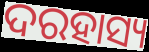
ଦରହାସ୍ୟ